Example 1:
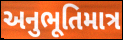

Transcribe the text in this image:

અનુભૂતિમાત્ર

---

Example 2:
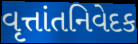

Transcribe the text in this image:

વૃત્તાંતનિવેદક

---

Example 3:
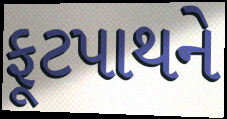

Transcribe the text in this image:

ફૂટપાથને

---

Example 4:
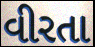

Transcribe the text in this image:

વીરતા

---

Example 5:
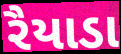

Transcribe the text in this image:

રૈયાડા